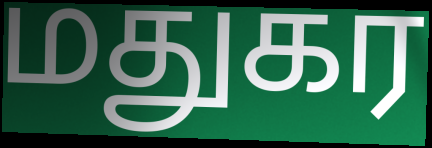
மதுகர